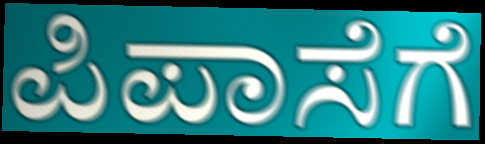
ಪಿಪಾಸೆಗೆ